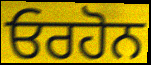
ਓਰਹੋਨ